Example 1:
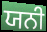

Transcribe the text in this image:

ਯਨੀ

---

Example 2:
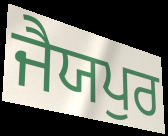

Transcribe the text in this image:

ਜੈਯਪੁਰ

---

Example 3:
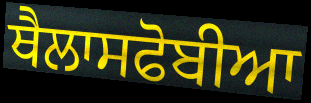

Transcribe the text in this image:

ਥੈਲਾਸਫੋਬੀਆ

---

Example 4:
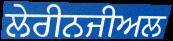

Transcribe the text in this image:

ਲੇਰੀਨਜੀਅਲ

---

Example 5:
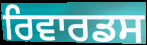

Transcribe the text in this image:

ਰਿਵਾਰਡਸ